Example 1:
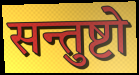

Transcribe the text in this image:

सन्तुष्टो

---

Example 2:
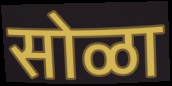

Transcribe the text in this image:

सोळा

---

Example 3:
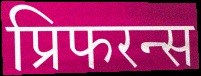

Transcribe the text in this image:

प्रिफरन्स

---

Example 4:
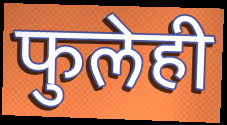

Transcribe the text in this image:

फुलेही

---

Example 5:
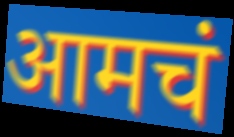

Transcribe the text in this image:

आमचं